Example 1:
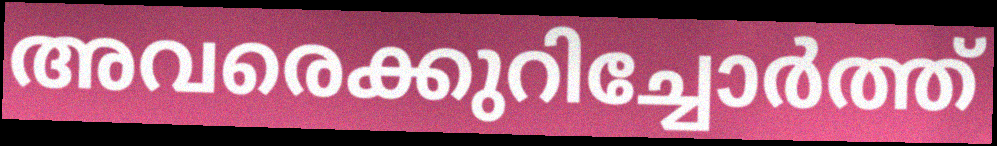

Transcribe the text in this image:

അവരെക്കുറിച്ചോർത്ത്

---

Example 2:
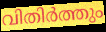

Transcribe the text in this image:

വിതിർത്തും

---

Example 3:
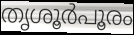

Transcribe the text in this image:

തൃശൂർപൂരം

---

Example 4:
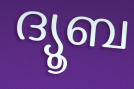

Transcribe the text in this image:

ദ്യൂബ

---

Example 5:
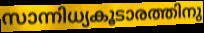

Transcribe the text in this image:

സാന്നിധ്യകൂടാരത്തിനു